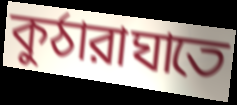
কুঠারাঘাতে